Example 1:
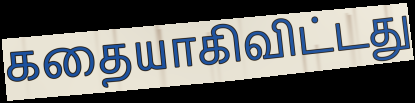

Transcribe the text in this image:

கதையாகிவிட்டது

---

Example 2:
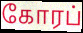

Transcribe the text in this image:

கோரப்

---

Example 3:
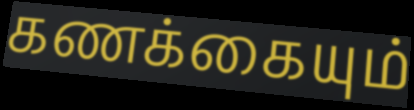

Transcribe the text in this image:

கணக்கையும்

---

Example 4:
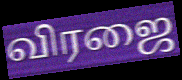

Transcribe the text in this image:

விரஜை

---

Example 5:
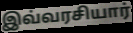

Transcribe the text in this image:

இவ்வரசியார்